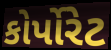
કોર્પોરેટ